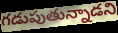
గడుపుతున్నాడని